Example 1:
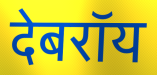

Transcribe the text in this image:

देबरॉय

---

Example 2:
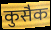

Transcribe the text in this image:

कुसैक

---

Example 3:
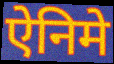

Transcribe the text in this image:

ऐनिमे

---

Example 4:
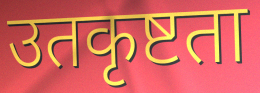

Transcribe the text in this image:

उतकृष्टता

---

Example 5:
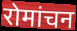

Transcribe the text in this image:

रोमांचन